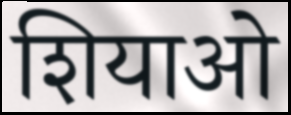
शियाओ